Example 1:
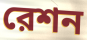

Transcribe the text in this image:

রেশন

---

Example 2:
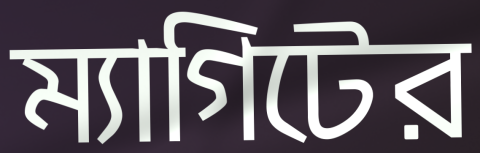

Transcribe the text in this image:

ম্যাগিটের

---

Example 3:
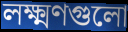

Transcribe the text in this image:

লক্ষ্মণগুলো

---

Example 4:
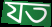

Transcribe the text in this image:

যত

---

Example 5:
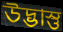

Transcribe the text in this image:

উদ্ভাস্তু